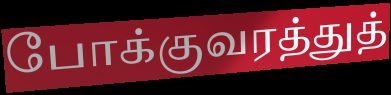
போக்குவரத்துத்